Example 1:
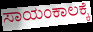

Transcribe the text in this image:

ಸಾಯಂಕಾಲಕ್ಕೆ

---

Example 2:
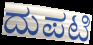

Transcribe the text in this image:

ದುಪಟಿ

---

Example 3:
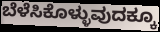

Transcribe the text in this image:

ಬೆಳೆಸಿಕೊಳ್ಳುವುದಕ್ಕೂ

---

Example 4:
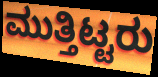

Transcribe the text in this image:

ಮುತ್ತಿಟ್ಟರು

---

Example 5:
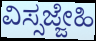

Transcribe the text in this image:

ವಿಸ್ಸಜ್ಜೇಹಿ